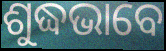
ଶୁଦ୍ଧଭାବେ